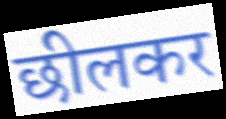
छीलकर